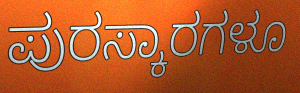
ಪುರಸ್ಕಾರಗಳೂ